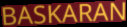
BASKARAN